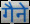
गैने